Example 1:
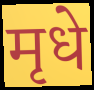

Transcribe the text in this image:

मृधे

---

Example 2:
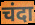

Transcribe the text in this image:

चंदा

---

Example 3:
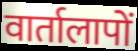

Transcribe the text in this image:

वार्तालापों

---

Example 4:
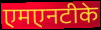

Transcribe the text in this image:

एमएनटीके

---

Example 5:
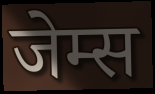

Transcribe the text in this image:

जेम्स